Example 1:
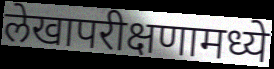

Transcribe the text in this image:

लेखापरीक्षणामध्ये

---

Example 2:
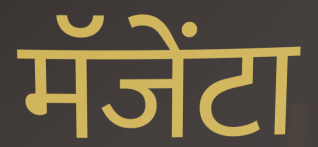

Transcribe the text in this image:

मॅजेंटा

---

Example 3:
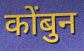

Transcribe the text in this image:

कोंबुन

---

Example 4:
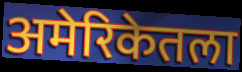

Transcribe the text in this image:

अमेरिकेतला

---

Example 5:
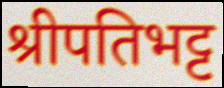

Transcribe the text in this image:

श्रीपतिभट्ट